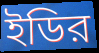
ইডির